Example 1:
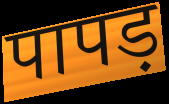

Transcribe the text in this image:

पापड़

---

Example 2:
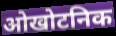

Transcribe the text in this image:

ओखोटनिक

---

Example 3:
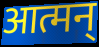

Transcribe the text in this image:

आत्मन्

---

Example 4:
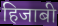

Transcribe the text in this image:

हिजाबी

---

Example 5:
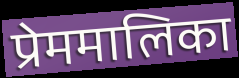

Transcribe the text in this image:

प्रेममालिका